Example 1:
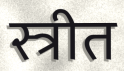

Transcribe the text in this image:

स्त्रीत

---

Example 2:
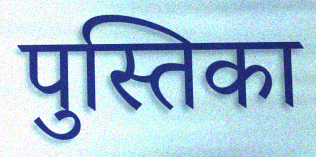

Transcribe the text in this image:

पुस्तिका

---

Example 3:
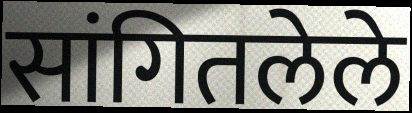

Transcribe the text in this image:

सांगितलेले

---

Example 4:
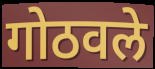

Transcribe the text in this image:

गोठवले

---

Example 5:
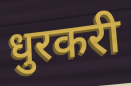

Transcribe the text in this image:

धुरकरी